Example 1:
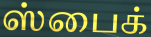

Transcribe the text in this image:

ஸ்பைக்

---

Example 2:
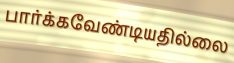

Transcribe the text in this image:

பார்க்கவேண்டியதில்லை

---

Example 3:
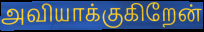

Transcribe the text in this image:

அவியாக்குகிறேன்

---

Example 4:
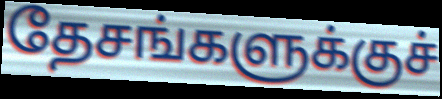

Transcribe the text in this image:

தேசங்களுக்குச்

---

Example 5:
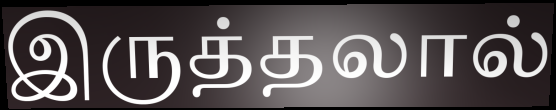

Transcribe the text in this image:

இருத்தலால்